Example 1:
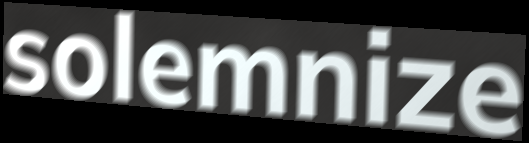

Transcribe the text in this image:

solemnize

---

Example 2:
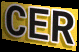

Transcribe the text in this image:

CER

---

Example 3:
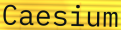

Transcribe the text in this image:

Caesium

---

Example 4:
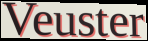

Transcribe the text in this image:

Veuster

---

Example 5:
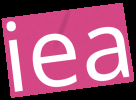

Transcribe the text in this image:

iea